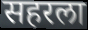
सहरला